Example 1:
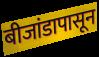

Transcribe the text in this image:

बीजांडापासून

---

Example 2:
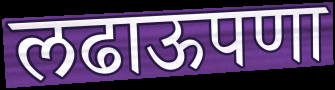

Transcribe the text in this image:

लढाऊपणा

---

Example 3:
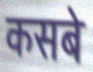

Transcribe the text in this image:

कसबे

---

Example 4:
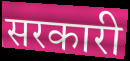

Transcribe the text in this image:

सरकारी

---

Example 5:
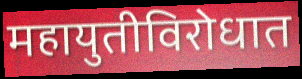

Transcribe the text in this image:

महायुतीविरोधात